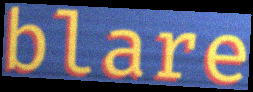
blare